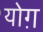
योग़